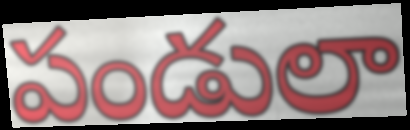
పండులా